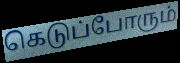
கெடுப்போரும்